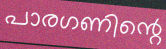
പാരഗണിന്റെ